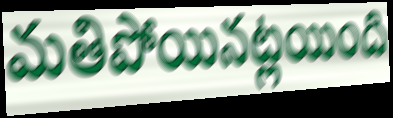
మతిపోయినట్లయింది